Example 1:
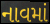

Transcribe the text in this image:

નાવમાં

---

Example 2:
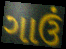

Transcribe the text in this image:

ગાઉં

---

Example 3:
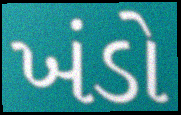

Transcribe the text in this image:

ખંડો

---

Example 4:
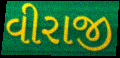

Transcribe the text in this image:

વીરાજી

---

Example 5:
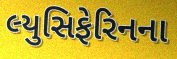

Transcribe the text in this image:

લ્યુસિફેરિનના